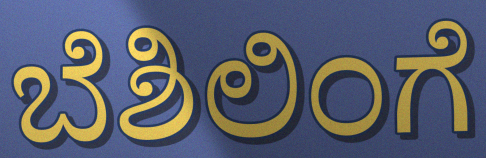
ಬೆಶಿಲಿಂಗೆ